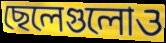
ছেলেগুলোও